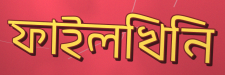
ফাইলখিনি